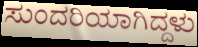
ಸುಂದರಿಯಾಗಿದ್ದಳು